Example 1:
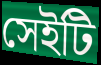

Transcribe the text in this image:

সেইটি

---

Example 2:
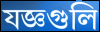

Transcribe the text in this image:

যজ্ঞগুলি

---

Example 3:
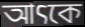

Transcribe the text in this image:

আৎকে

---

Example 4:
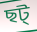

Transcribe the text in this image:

ছট্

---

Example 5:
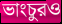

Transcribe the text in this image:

ভাংচুরও